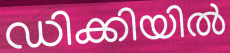
ഡിക്കിയിൽ